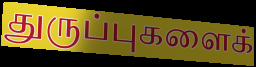
துருப்புகளைக்